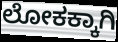
ಲೋಕಕ್ಕಾಗಿ